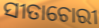
ସୀତାଚୋରୀ